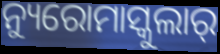
ନ୍ୟୁରୋମାସ୍କୁଲାର୍